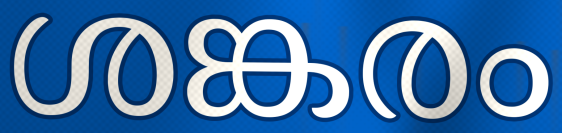
ശങ്കരം